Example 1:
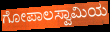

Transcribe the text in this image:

ಗೋಪಾಲಸ್ವಾಮಿಯ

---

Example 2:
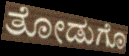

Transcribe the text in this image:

ತೋಡುಗೊ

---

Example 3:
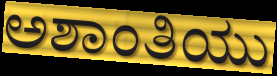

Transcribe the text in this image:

ಅಶಾಂತಿಯು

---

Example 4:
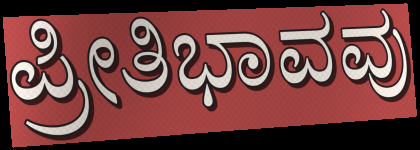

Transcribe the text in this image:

ಪ್ರೀತಿಭಾವವು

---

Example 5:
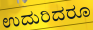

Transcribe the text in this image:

ಉದುರಿದರೂ